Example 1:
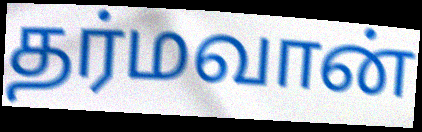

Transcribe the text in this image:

தர்மவான்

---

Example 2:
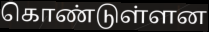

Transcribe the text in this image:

கொண்டுள்ளன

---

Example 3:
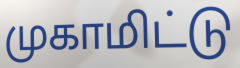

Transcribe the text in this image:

முகாமிட்டு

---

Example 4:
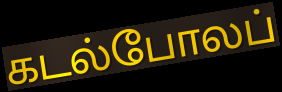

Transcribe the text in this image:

கடல்போலப்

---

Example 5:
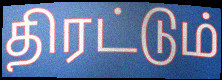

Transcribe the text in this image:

திரட்டும்